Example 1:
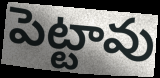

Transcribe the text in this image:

పెట్టావు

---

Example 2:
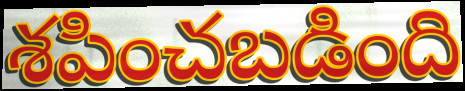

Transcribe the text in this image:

శపించబడింది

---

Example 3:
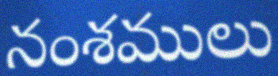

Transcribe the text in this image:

నంశములు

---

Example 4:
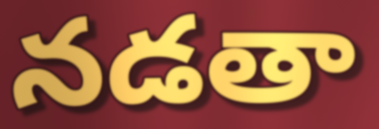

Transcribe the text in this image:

నడతా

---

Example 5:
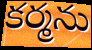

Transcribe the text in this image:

కర్మను